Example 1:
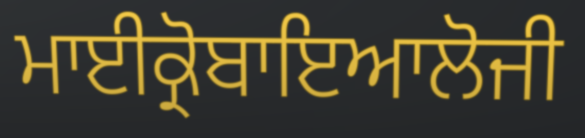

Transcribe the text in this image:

ਮਾਈਕ੍ਰੋਬਾਇਆਲੋਜੀ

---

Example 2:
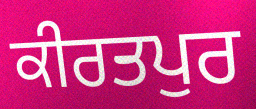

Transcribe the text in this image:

ਕੀਰਤਪੁਰ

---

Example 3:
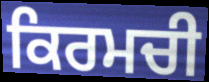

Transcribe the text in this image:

ਕਿਰਮਚੀ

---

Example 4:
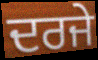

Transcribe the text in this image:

ਦਰਜੇ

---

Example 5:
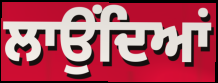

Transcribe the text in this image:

ਲਾਉਂਦਿਆਂ